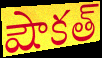
షౌకత్